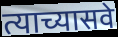
त्याच्यासवे